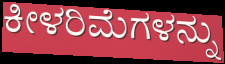
ಕೀಳರಿಮೆಗಳನ್ನು